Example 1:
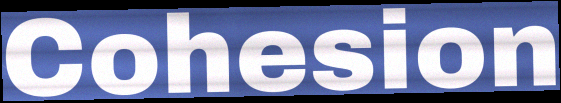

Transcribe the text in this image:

Cohesion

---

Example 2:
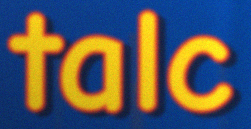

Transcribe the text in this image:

talc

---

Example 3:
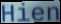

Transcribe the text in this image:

Hien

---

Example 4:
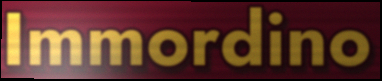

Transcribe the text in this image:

Immordino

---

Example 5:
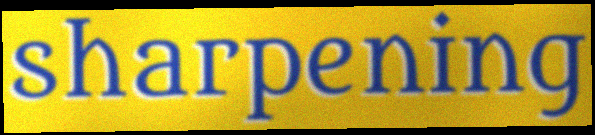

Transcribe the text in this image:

sharpening